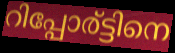
റിപ്പോര്ട്ടിനെ